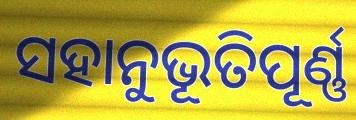
ସହାନୁଭୂତିପୂର୍ଣ୍ଣ